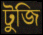
টুজি